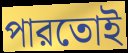
পারতোই